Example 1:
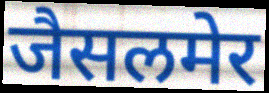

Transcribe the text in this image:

जैसलमेर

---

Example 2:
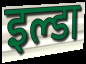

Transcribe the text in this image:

इल्डा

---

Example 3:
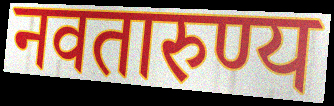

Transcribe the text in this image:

नवतारुण्य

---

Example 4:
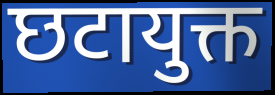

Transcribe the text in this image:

छटायुक्त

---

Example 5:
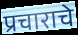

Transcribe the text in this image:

प्रचाराचे